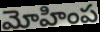
మోహింప